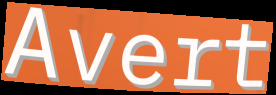
Avert